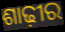
ଶାଢ଼ୀର